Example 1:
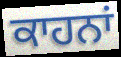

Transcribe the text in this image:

ਕਾਹਨਾਂ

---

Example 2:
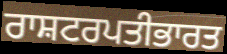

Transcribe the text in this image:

ਰਾਸ਼ਟਰਪਤੀਭਾਰਤ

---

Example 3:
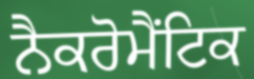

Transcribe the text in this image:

ਨੈਕਰੋਮੈਂਟਿਕ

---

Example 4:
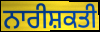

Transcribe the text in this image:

ਨਾਰੀਸ਼ਕਤੀ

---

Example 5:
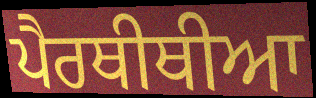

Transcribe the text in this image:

ਪੈਰਥੀਥੀਆ